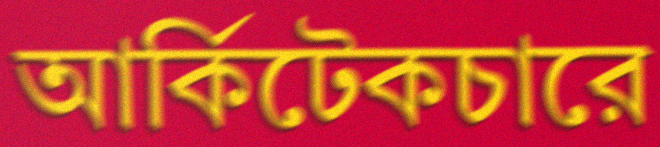
আর্কিটেকচারে